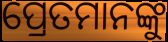
ପ୍ରେତମାନଙ୍କୁ